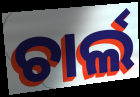
ଚାର୍ଲ